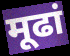
मूढां